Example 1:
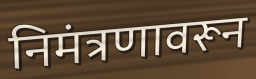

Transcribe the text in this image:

निमंत्रणावरून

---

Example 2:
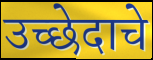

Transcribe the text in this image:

उच्छेदाचे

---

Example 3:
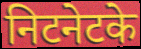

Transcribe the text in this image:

निटनेटके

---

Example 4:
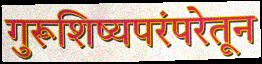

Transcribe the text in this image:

गुरूशिष्यपरंपरेतून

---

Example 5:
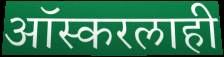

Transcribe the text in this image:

ऑस्करलाही